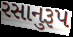
રસાનુરૂપ